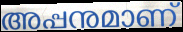
അപ്പനുമാണ്